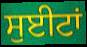
ਸੁਈਟਾਂ